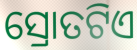
ସ୍ରୋତଟିଏ